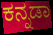
ಕನ್ನಡಾ